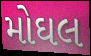
મોઘલ